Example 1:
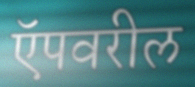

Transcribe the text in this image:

ऍपवरील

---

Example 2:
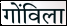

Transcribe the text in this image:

गोंविला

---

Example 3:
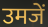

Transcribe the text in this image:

उमजें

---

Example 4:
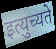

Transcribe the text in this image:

इत्युच्यते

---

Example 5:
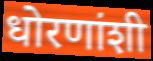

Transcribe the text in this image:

धोरणांशी